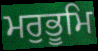
ਮਰੁਭੂਮਿ